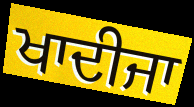
ਖਾਦੀਜਾ